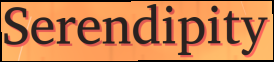
Serendipity